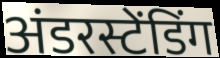
अंडरस्टेंडिंग